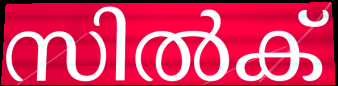
സിൽക്